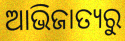
ଆଭିଜାତ୍ୟରୁ